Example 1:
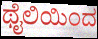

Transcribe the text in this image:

ಥೈಲಿಯಿಂದ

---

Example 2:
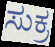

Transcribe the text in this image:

ಸುಕ್ರ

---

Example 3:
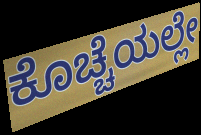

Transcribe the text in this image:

ಕೊಚ್ಚೆಯಲ್ಲೇ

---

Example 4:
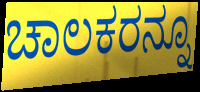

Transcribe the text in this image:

ಚಾಲಕರನ್ನೂ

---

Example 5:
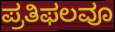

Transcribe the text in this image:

ಪ್ರತಿಫಲವೂ